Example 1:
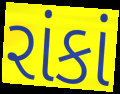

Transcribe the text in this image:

રાંકાં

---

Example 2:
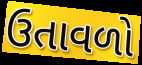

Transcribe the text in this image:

ઉતાવળો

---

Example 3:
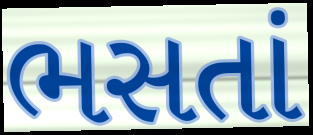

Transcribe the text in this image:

ભસતાં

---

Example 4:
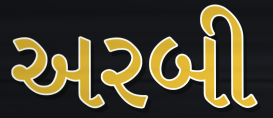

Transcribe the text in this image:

અરબી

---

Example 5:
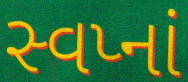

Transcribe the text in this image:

સ્વપ્નાં